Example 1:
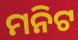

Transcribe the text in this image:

ମନିଟ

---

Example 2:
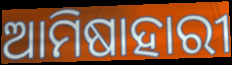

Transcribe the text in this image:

ଆମିଷାହାରୀ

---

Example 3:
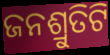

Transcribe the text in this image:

ଜନଶ୍ରୁତିଟି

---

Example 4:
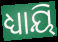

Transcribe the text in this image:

ଧ୍ୟାୟି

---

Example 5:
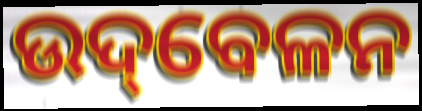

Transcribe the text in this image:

ଉଦ୍‌ବେଳନ